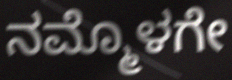
ನಮ್ಮೊಳಗೇ